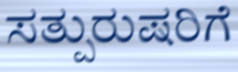
ಸತ್ಪುರುಷರಿಗೆ